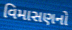
વિમાસણનો